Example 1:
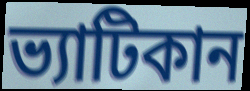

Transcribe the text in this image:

ভ্যাটিকান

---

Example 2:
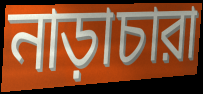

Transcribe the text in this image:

নাড়াচারা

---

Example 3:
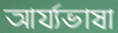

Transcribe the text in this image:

আর্য্যভাষা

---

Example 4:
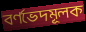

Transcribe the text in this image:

বর্ণভেদমূলক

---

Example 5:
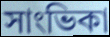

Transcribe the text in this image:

সাংভিকা